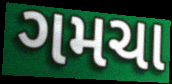
ગમચા